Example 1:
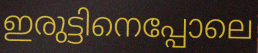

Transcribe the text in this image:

ഇരുട്ടിനെപ്പോലെ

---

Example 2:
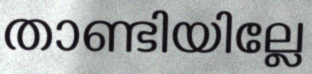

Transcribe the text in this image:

താണ്ടിയില്ലേ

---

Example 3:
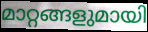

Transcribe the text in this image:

മാറ്റങ്ങളുമായി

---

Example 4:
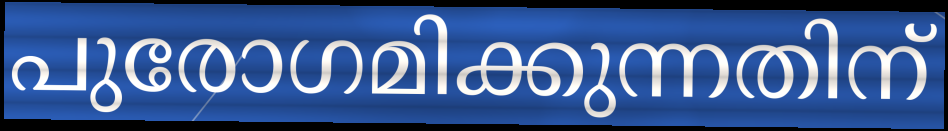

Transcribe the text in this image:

പുരോഗമിക്കുന്നതിന്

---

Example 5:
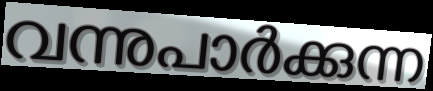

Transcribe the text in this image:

വന്നുപാർക്കുന്ന